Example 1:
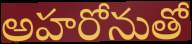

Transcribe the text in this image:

అహరోనుతో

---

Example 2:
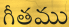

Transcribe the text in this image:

గీతము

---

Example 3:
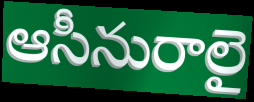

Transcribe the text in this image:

ఆసీనురాలై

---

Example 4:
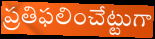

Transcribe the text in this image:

ప్రతిఫలించేట్టుగా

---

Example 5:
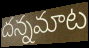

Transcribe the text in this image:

దన్నమాట